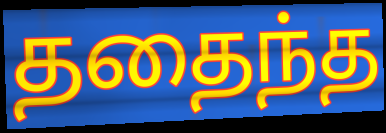
ததைந்த